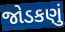
જોડકણું